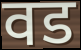
वड